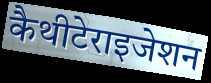
कैथीटेराइजेशन